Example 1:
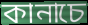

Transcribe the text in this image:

কানাচে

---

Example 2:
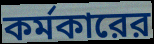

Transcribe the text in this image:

কর্মকারের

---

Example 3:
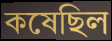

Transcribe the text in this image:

কষেছিল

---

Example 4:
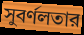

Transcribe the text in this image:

সুবর্ণলতার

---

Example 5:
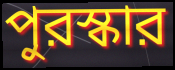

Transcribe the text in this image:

পুরস্কার